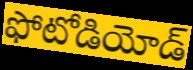
ఫోటోడియోడ్